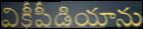
వికీపీడియాను